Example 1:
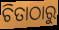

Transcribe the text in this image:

ଚିତାଠାରୁ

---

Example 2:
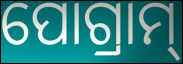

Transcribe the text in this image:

ପୋଗ୍ରାମ୍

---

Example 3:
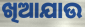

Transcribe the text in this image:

ଖିଆଯାଉ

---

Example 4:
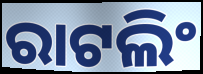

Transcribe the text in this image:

ରାଟଲିଂ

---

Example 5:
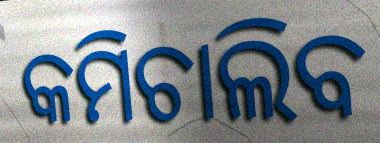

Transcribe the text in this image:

କମିଚାଲିବ